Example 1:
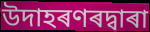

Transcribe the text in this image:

উদাহৰণৰদ্বাৰা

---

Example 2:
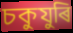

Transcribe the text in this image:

চকুযুৰি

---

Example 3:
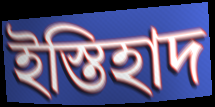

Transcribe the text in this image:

ইস্তিহাদ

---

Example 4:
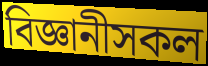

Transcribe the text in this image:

বিজ্ঞানীসকল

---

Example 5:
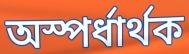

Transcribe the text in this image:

অস্পৰ্ধাৰ্থক